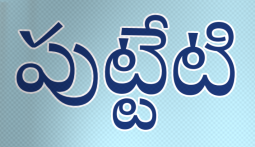
పుట్టేటి